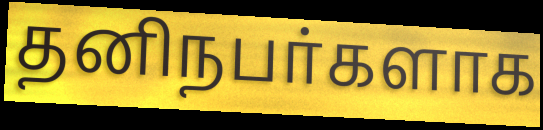
தனிநபர்களாக